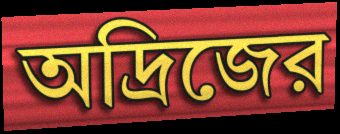
অদ্রিজের